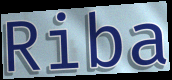
Riba